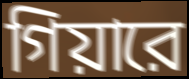
গিয়ারে